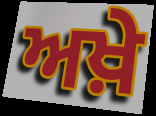
ਅਖ਼ੇ